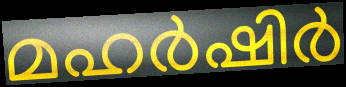
മഹർഷിർ